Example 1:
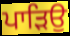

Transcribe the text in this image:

ਪਾੜਿਉ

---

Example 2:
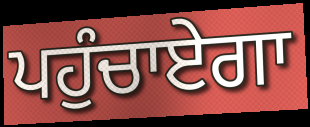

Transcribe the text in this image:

ਪਹੁੰਚਾਏਗਾ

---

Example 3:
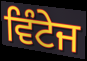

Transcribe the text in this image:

ਵਿੰਟੇਜ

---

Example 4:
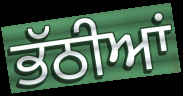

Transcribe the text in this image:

ਭੱਠੀਆਂ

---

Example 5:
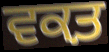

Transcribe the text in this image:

ਵਕ਼ਤ